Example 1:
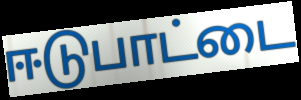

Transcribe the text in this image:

ஈடுபாட்டை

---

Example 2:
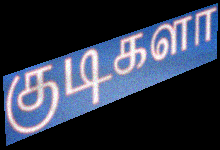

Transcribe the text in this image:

குடிகளா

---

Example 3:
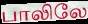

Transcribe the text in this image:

பாலிலே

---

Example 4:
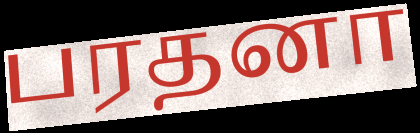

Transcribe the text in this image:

பரதனா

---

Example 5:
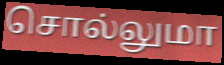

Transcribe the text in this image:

சொல்லுமா